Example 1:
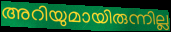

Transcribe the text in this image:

അറിയുമായിരുന്നില്ല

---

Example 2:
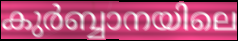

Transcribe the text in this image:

കുർബ്ബാനയിലെ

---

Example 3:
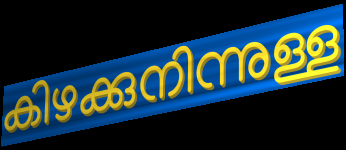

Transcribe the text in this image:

കിഴക്കുനിന്നുള്ള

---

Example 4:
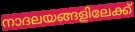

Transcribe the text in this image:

നാദലയങ്ങളിലേക്ക്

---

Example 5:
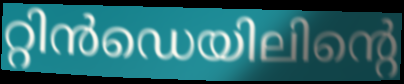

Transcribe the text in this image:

റ്റിൻഡെയിലിന്റെ